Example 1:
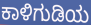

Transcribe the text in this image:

ಕಾಳಿಗುಡಿಯ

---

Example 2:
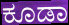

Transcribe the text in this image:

ಕೂಡಾ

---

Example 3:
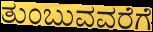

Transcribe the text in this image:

ತುಂಬುವವರೆಗೆ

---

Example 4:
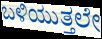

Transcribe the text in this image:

ಬಳಿಯುತ್ತಲೇ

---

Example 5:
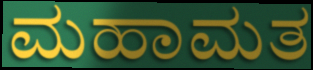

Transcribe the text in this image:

ಮಹಾಮತ